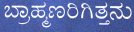
ಬ್ರಾಹ್ಮಣರಿಗಿತ್ತನು